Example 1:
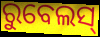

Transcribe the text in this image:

ରୁବେଲସ୍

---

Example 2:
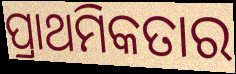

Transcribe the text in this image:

ପ୍ରାଥମିକତାର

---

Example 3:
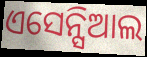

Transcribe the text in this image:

ଏସେନ୍ସିଆଲ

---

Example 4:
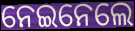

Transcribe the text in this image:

ନେଇନେଲେ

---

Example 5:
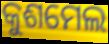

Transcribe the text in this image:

କୁଶମେଲ